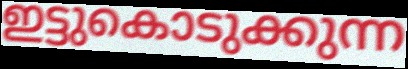
ഇട്ടുകൊടുക്കുന്ന